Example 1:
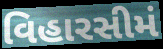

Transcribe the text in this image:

વિહારસીમં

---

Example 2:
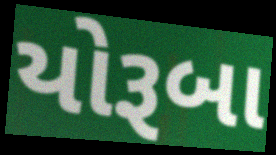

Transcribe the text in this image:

યોરૂબા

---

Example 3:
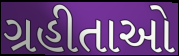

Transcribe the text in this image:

ગ્રહીતાઓ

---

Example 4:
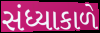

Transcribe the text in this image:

સંધ્યાકાળે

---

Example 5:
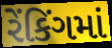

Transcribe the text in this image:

રેંકિંગમાં